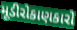
મૂડીરોકાણકારો